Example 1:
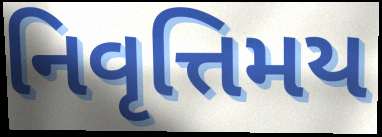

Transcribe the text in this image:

નિવૃત્તિમય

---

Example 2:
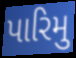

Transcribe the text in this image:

પારિમુ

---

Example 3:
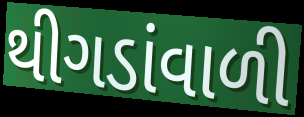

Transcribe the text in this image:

થીગડાંવાળી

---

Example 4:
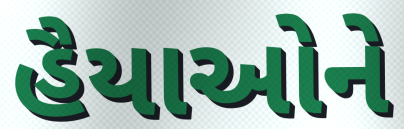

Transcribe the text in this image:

હૈયાઓને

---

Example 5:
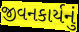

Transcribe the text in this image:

જીવનકાર્યનું